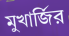
মুখার্জির